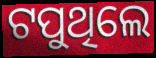
ଟପୁଥିଲେ